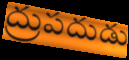
ద్రుపదుడు